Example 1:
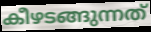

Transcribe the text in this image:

കീഴടങ്ങുന്നത്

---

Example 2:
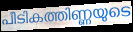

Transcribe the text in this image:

പീടികത്തിണ്ണയുടെ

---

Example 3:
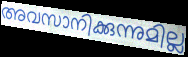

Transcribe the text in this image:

അവസാനിക്കുന്നുമില്ല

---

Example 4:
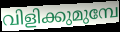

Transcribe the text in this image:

വിളിക്കുമുമ്പേ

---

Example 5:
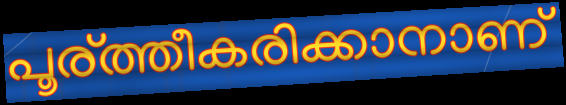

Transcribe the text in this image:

പൂര്ത്തീകരിക്കാനാണ്